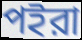
পইরা